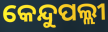
କେନ୍ଦୁପଲ୍ଲୀ